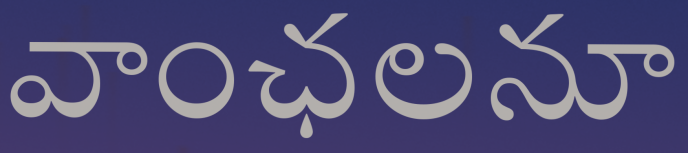
వాంఛలనూ